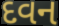
દવન